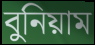
বুনিয়াম